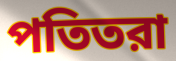
পতিতরা